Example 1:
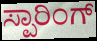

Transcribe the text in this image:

ಸ್ಪಾರಿಂಗ್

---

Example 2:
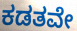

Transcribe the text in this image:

ಕಡತವೇ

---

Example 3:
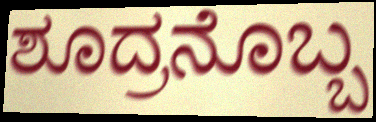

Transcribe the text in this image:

ಶೂದ್ರನೊಬ್ಬ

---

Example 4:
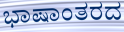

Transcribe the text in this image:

ಭಾಷಾಂತರದ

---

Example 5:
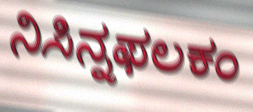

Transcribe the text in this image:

ನಿಸಿನ್ನಫಲಕಂ